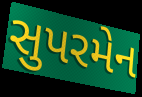
સુપરમેન